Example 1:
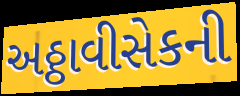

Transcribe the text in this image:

અઠ્ઠાવીસેકની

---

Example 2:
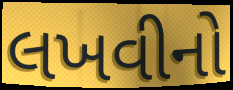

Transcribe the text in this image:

લખવીનો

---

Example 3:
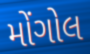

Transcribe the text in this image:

મોંગોલ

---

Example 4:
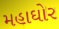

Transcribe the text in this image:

મહાઘોર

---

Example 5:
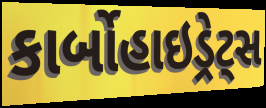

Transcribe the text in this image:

કાર્બોહાઇડ્રેટ્સ